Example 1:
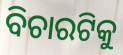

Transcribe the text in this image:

ବିଚାରଟିକୁ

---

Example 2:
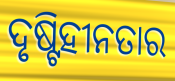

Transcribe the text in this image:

ଦୃଷ୍ଟିହୀନତାର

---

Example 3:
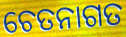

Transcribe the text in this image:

ଚେତନାଗତ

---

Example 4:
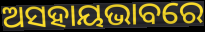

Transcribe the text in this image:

ଅସହାୟଭାବରେ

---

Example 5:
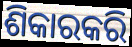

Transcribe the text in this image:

ଶିକାରକରି